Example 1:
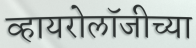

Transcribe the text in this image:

व्हायरोलॉजीच्या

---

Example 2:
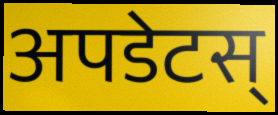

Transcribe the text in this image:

अपडेटस्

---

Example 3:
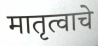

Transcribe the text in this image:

मातृत्वाचे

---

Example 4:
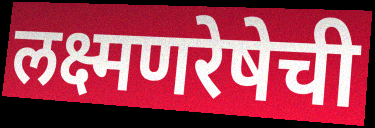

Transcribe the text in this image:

लक्ष्मणरेषेची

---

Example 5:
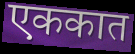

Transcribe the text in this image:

एककात